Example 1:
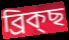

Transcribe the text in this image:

ব্ৰিক্‌ছ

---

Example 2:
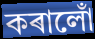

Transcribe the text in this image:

কৰালোঁ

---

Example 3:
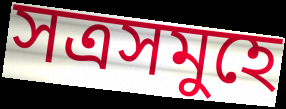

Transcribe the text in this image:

সত্ৰসমুহে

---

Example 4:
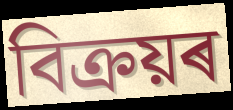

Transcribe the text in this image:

বিক্ৰয়ৰ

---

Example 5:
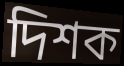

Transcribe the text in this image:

দিশক